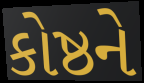
કોષ્ઠને